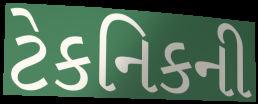
ટેકનિકની